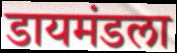
डायमंडला